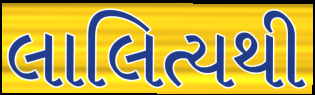
લાલિત્યથી